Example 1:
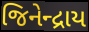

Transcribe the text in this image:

જિનેન્દ્રાય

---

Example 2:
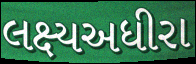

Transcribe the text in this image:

લક્ષ્યઅધીરા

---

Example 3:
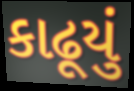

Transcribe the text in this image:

કાઢૂયું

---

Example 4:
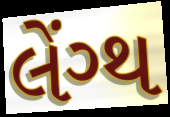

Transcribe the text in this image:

લેંગ્થ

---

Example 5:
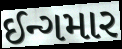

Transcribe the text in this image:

ઈન્ગમાર